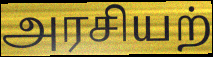
அரசியற்